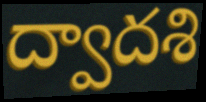
ద్వాదశి